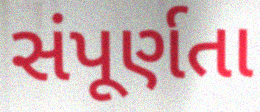
સંપૂર્ણતા